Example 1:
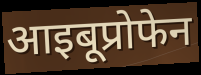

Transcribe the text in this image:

आइबूप्रोफेन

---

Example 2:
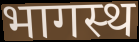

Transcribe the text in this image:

भागस्थ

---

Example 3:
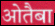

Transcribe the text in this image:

ओतैबा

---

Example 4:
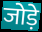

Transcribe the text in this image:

जोड़े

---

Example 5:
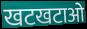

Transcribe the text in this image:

खटखटाओ